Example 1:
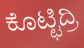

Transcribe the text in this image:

ಕೊಟ್ಟಿದ್ರಿ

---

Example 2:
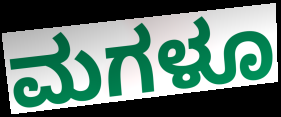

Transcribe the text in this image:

ಮಗಳೂ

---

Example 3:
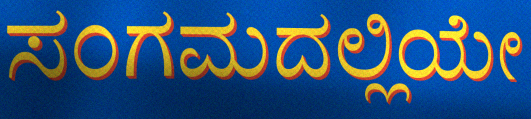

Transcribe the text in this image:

ಸಂಗಮದಲ್ಲಿಯೇ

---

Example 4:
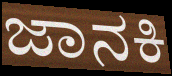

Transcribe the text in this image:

ಜಾನಕಿ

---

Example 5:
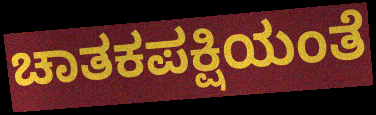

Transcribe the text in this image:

ಚಾತಕಪಕ್ಷಿಯಂತೆ